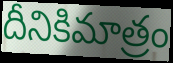
దీనికిమాత్రం